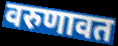
वरुणावत